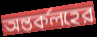
অন্তর্কলহের